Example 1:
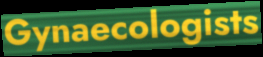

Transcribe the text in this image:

Gynaecologists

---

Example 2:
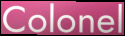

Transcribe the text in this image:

Colonel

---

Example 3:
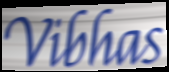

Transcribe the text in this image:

Vibhas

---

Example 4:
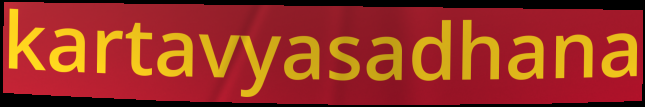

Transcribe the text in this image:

kartavyasadhana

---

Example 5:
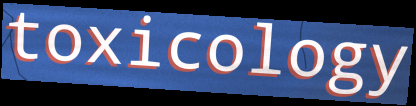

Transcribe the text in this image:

toxicology